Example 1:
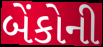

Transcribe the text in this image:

બેંકોની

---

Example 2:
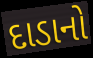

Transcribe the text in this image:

દાડાનો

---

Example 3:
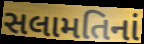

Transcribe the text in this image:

સલામતિનાં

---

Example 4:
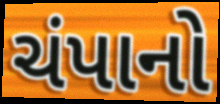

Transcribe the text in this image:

ચંપાનો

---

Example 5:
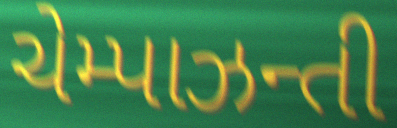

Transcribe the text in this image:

ચેમ્પાઝન્તી